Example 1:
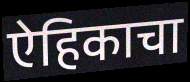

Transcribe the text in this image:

ऐहिकाचा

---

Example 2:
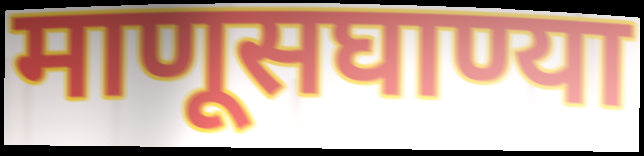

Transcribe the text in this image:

माणूसघाण्या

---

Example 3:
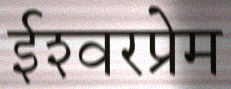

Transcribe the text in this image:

ईश्वरप्रेम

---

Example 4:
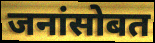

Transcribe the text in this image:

जनांसोबत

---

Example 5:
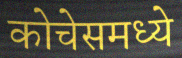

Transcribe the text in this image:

कोचेसमध्ये